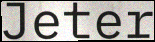
Jeter